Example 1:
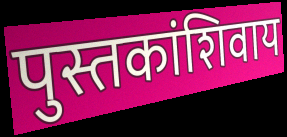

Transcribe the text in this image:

पुस्तकांशिवाय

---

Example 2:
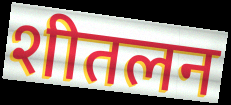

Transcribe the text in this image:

शीतलन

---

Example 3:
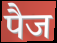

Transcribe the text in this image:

पैज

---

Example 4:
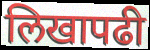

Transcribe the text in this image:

लिखापढी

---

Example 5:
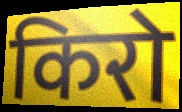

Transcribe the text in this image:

किरो